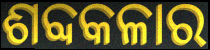
ଶବ୍ଦକଳାର